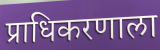
प्राधिकरणाला